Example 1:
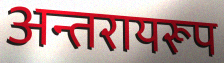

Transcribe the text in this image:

अन्तरायरूप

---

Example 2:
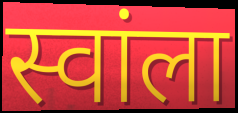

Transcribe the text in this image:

स्वांला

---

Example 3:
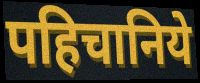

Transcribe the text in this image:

पहिचानिये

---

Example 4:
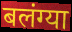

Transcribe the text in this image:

बलंग्या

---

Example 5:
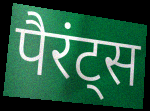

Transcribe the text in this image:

पैरंट्स